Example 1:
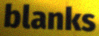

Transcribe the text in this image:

blanks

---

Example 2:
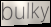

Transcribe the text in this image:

bulky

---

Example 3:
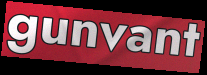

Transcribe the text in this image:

gunvant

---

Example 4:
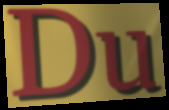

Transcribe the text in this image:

Du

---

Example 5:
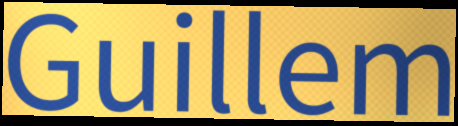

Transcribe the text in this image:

Guillem